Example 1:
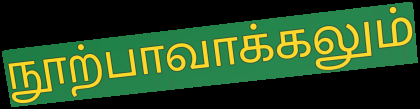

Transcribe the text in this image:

நூற்பாவாக்கலும்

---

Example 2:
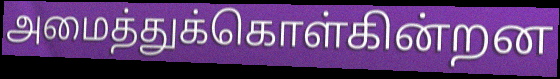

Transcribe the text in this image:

அமைத்துக்கொள்கின்றன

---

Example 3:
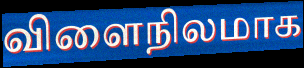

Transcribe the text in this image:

விளைநிலமாக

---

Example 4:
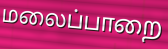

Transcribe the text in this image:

மலைப்பாறை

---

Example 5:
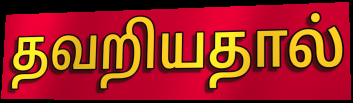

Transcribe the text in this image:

தவறியதால்